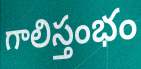
గాలిస్తంభం